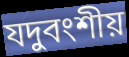
যদুবংশীয়